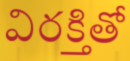
విరక్తితో